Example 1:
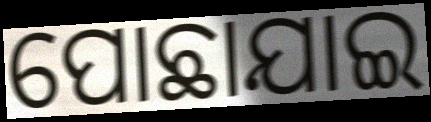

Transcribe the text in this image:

ପୋଛାଯାଇ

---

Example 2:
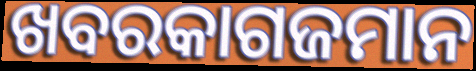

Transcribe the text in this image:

ଖବରକାଗଜମାନ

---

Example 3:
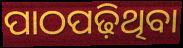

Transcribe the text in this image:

ପାଠପଢ଼ିଥିବା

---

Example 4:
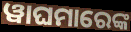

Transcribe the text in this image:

ୱାଘମାରେଙ୍କ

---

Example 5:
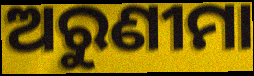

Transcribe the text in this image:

ଅରୁଣୀମା